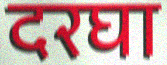
दरघा